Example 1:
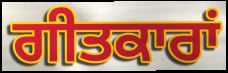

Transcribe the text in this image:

ਗੀਤਕਾਰਾਂ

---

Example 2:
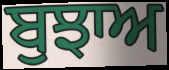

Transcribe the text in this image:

ਬੁਝਾਅ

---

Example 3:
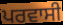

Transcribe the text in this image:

ਪਰਵਾਸੀ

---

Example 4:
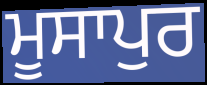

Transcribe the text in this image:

ਮੂਸਾਪੁਰ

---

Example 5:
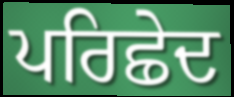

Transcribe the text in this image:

ਪਰਿਛੇਦ